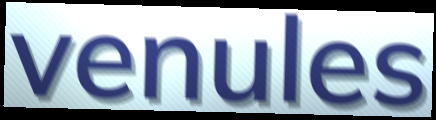
venules